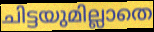
ചിട്ടയുമില്ലാതെ